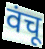
वंचू